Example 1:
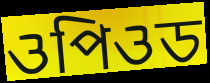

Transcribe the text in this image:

ওপিওড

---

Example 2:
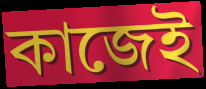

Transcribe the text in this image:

কাজেই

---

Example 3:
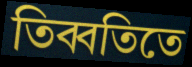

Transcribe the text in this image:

তিব্বতিতে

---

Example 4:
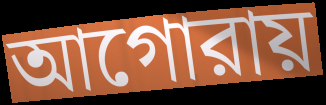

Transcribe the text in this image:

আগোরায়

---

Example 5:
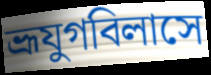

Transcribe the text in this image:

ভ্রূযুগবিলাসে